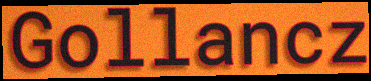
Gollancz